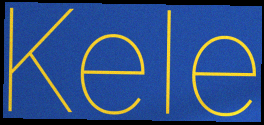
Kele